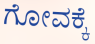
ಗೋವಕ್ಕೆ